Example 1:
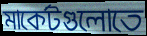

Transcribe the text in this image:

মার্কেটগুলোতে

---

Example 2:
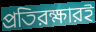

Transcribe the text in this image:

প্রতিরক্ষারই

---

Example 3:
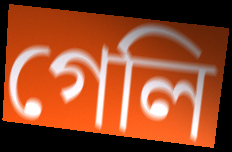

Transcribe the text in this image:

গেলি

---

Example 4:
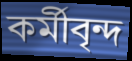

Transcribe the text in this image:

কর্মীবৃন্দ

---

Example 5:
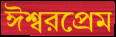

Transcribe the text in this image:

ঈশ্বরপ্রেম